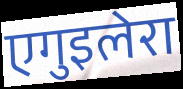
एगुइलेरा